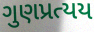
ગુણપ્રત્યય